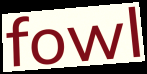
fowl